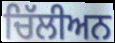
ਚਿੱਲੀਅਨ